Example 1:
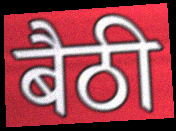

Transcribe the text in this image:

बैठी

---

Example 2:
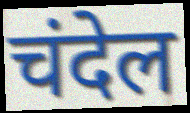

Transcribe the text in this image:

चंदेल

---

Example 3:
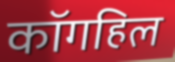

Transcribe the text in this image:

कॉगहिल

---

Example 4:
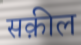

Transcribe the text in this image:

सक़ील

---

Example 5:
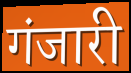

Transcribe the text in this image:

गंजारी